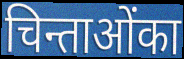
चिन्ताओंका